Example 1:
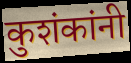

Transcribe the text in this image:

कुशंकांनी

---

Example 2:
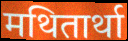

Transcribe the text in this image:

मथितार्था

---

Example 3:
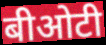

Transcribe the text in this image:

बीओटी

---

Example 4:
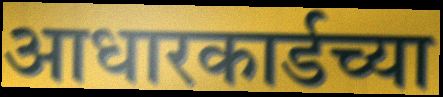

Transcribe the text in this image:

आधारकार्डच्या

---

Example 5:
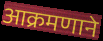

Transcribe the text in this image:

आक्रमणाने